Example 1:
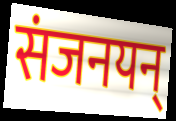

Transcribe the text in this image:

संजनयन्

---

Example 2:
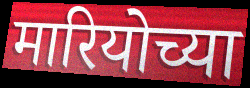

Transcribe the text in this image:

मारियोच्या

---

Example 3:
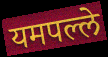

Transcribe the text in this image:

यमपल्ले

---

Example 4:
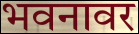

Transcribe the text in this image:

भवनावर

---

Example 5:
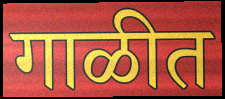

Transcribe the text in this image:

गाळीत